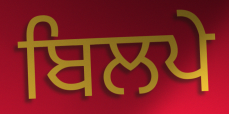
ਬਿਲਪੇ